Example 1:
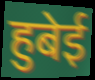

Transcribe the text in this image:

हुबेई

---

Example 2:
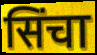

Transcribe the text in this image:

सिंचा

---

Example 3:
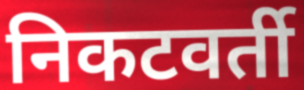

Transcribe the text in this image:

निकटवर्ती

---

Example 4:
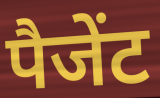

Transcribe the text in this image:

पैजेंट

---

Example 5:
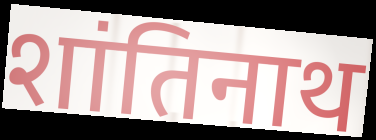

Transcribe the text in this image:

शांतिनाथ